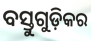
ବସ୍ତୁଗୁଡ଼ିକର